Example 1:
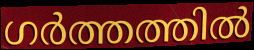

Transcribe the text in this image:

ഗർത്തത്തിൽ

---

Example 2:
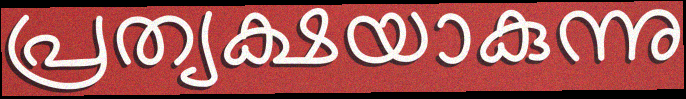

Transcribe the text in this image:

പ്രത്യക്ഷയാകുന്നു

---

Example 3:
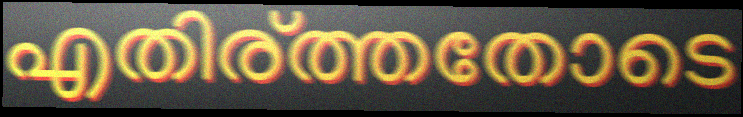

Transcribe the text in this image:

എതിര്ത്തതോടെ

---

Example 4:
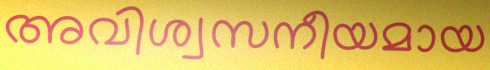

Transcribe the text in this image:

അവിശ്വസനീയമായ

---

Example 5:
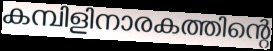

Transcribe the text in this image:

കമ്പിളിനാരകത്തിന്റെ